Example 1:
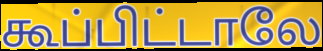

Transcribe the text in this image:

கூப்பிட்டாலே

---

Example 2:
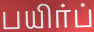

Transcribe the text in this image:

பயிர்ப்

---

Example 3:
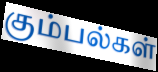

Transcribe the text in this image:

கும்பல்கள்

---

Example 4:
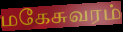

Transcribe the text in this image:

மகேசுவரம்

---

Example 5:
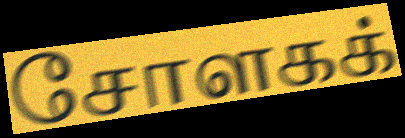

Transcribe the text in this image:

சோளகக்